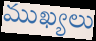
ముఖ్యలు